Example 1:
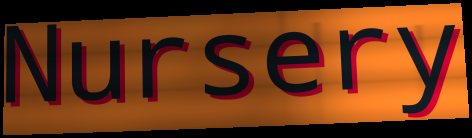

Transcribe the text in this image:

Nursery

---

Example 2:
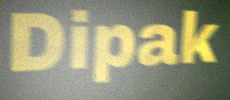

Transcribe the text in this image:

Dipak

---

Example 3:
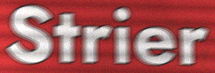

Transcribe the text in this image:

Strier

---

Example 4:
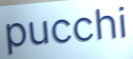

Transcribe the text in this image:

pucchi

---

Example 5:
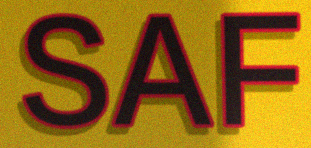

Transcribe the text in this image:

SAF